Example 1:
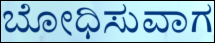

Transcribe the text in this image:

ಬೋಧಿಸುವಾಗ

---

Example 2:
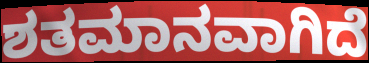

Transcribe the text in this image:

ಶತಮಾನವಾಗಿದೆ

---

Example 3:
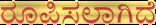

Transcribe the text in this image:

ರೂಪಿಸಲಾಗಿದೆ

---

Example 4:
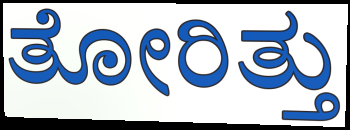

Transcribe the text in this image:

ತೋರಿತ್ತು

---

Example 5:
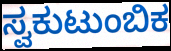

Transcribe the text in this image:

ಸ್ವಕುಟುಂಬಿಕ